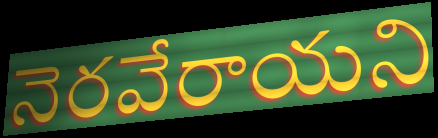
నెరవేరాయని